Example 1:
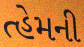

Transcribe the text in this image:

ત્હેમની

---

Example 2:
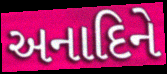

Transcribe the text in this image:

અનાદિને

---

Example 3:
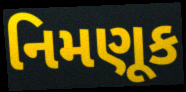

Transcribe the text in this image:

નિમણૂક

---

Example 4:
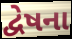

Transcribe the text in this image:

દ્વેષના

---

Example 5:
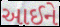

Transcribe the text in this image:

આઈને